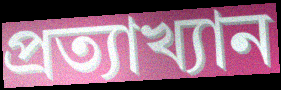
প্ৰত্যাখ্যান